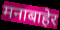
मनाबाहेर